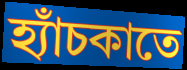
হ্যাঁচকাতে